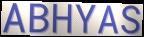
ABHYAS